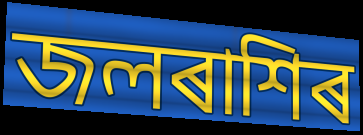
জলৰাশিৰ